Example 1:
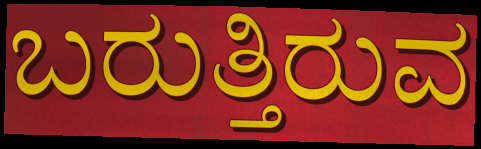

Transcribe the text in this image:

ಬರುತ್ತಿರುವ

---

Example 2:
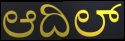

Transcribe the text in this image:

ಆದಿಲ್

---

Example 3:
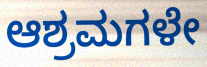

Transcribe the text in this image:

ಆಶ್ರಮಗಳೇ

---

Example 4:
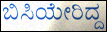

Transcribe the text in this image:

ಬಿಸಿಯೇರಿದ್ದ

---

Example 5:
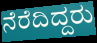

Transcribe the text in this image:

ನೆರೆದಿದ್ದರು